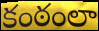
కంఠంలా